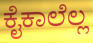
ಕೈಕಾಲೆಲ್ಲ